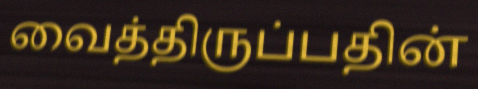
வைத்திருப்பதின்